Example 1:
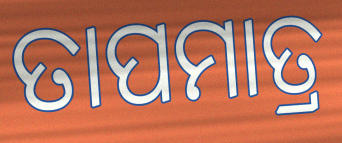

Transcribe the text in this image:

ତାପମାତ୍ର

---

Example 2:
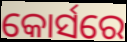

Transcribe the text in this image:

କୋର୍ସରେ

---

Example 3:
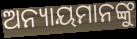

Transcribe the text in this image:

ଅନ୍ୟାୟମାନଙ୍କୁ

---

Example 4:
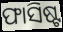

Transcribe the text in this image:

ଫାସିଷ୍ଟ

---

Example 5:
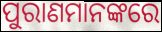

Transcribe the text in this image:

ପୁରାଣମାନଙ୍କରେ